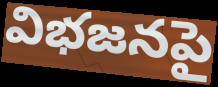
విభజనపై